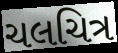
ચલચિત્ર